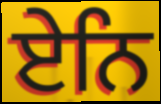
ਏਨਿ